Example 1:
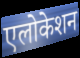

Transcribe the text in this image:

एलोकेशन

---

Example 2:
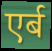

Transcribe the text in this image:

एर्ब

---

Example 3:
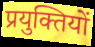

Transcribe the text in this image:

प्रयुक्तियों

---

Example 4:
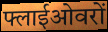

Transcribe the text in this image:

फ्लाईओवरों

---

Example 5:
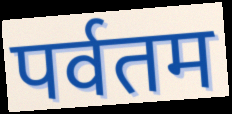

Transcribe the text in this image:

पर्वतम